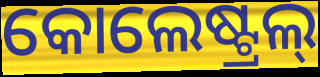
କୋଲେଷ୍ଟ୍ରଲ୍